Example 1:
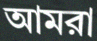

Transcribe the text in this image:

আমরা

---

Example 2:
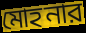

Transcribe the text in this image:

মোহনার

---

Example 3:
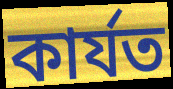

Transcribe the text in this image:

কার্যত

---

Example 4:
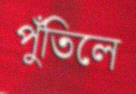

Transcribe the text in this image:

পুঁতিলে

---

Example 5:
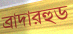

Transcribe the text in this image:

ব্রাদারহুড